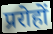
प्ररोहों